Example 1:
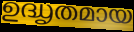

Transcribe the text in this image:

ഉദ്ധൃതമായ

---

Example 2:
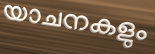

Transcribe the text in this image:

യാചനകളും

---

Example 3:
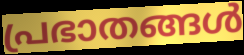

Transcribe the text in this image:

പ്രഭാതങ്ങൾ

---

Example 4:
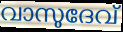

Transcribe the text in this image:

വാസുദേവ്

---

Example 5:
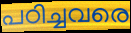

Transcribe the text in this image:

പഠിച്ചവരെ